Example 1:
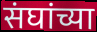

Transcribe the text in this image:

संघांच्या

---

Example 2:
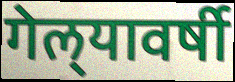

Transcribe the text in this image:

गेल्यावर्षी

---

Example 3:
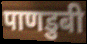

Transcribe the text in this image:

पाणडुबी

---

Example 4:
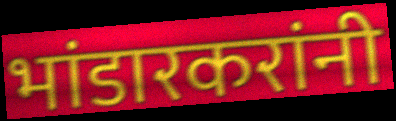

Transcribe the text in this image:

भांडारकरांनी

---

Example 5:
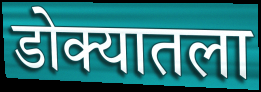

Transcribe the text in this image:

डोक्यातला